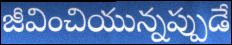
జీవించియున్నప్పుడే